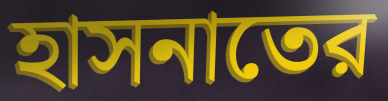
হাসনাতের